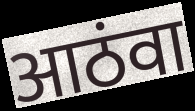
आठंवा